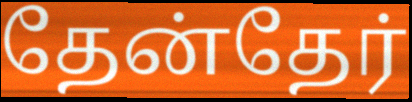
தேன்தேர்